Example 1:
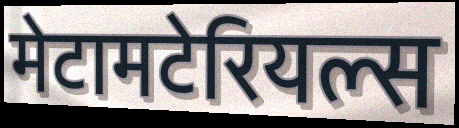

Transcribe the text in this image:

मेटामटेरियल्स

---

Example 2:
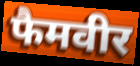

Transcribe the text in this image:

फैमवीर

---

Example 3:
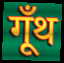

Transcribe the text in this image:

गूँथ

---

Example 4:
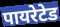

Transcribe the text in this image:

पायरेटेड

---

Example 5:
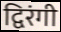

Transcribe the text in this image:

द्विरंगी